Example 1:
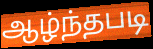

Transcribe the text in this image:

ஆழ்ந்தபடி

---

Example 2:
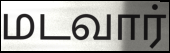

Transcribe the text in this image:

மடவார்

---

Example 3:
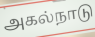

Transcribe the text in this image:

அகல்நாடு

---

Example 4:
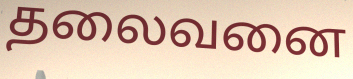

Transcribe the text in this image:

தலைவனை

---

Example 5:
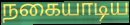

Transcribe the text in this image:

நகையாடிய